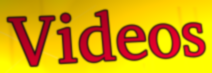
Videos